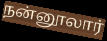
நன்னூலார்